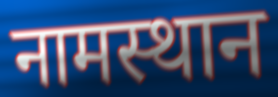
नामस्थान